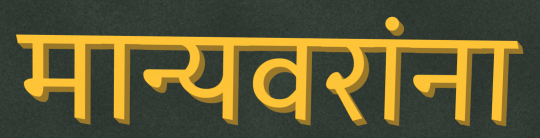
मान्यवरांना